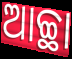
ଆଚ୍ଛା